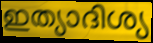
ഇത്യാദിശ്യ